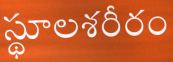
స్థూలశరీరం